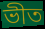
ভীত